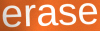
erase